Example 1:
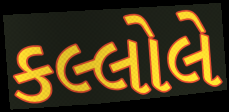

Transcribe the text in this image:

કલ્લોલે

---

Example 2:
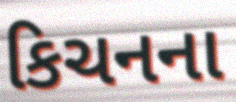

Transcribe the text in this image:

કિચનના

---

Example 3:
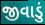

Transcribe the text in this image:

જીવાડું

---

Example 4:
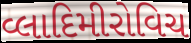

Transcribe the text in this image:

વ્લાદિમીરોવિચ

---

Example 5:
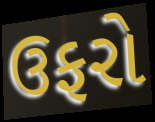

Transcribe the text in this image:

ઉફરો